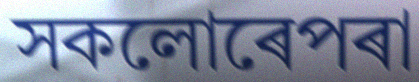
সকলোৰেপৰা